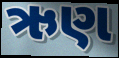
ઋણ